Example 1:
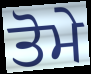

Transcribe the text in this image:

ਤੋਮੇ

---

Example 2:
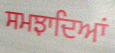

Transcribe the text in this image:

ਸਮਝਾਦਿਆਂ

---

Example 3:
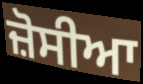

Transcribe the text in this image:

ਜ਼ੋਸੀਆ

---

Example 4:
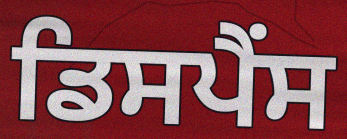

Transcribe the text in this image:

ਡਿਸਪੈਂਸ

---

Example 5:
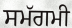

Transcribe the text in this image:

ਸਮੱਗਮੀ